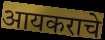
आयकराचे